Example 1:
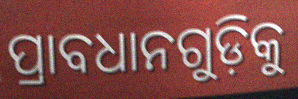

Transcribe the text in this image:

ପ୍ରାବଧାନଗୁଡ଼ିକୁ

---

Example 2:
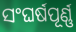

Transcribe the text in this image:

ସଂଘର୍ଷପୂର୍ଣ୍ଣ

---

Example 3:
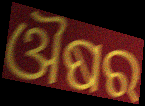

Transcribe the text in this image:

ଔଷର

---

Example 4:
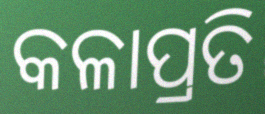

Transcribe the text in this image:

କଳାପ୍ରତି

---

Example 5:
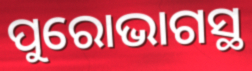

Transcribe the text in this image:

ପୁରୋଭାଗସ୍ଥ